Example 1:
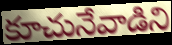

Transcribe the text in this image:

కూచునేవాడిని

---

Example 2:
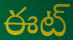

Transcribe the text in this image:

ఈట్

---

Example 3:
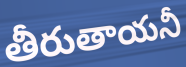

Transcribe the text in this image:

తీరుతాయనీ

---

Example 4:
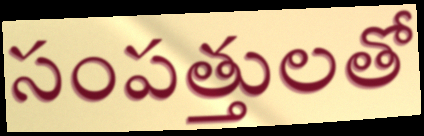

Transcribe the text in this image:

సంపత్తులతో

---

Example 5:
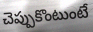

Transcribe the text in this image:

చెప్పుకొంటుంటే